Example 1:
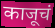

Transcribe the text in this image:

काजूचं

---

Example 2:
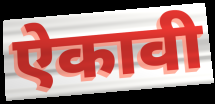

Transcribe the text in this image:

ऐकावी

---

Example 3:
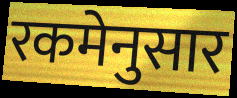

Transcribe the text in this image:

रकमेनुसार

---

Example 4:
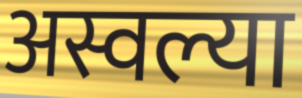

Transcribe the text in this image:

अस्वल्या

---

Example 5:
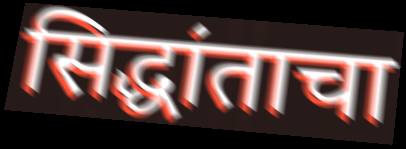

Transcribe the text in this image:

सिद्धांताचा